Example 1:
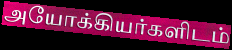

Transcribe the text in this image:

அயோக்கியர்களிடம்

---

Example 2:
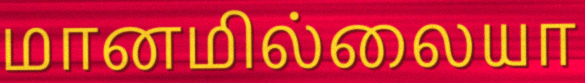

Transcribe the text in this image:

மானமில்லையா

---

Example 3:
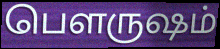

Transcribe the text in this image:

பௌருஷம்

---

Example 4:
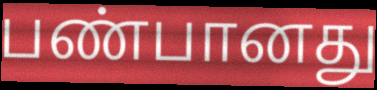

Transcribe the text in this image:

பண்பானது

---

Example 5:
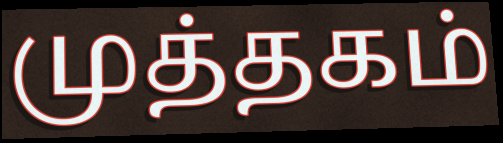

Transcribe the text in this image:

முத்தகம்